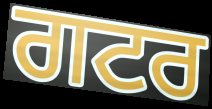
ਗਟਰ